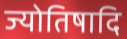
ज्योतिषादि